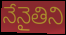
నేనైతిని